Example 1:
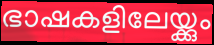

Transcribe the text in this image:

ഭാഷകളിലേയ്ക്കും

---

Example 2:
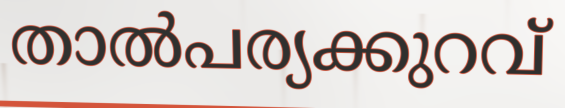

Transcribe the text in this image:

താൽപര്യക്കുറവ്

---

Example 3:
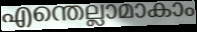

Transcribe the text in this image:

എന്തെല്ലാമാകാം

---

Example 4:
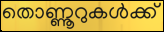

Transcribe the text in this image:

തൊണ്ണൂറുകൾക്ക്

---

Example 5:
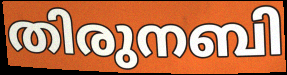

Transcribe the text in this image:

തിരുനബി